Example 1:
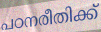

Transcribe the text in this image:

പഠനരീതിക്ക്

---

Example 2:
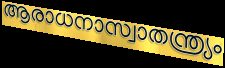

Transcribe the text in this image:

ആരാധനാസ്വാതന്ത്ര്യം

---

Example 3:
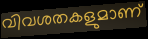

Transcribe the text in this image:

വിവശതകളുമാണ്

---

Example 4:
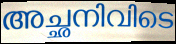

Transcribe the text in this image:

അച്ഛനിവിടെ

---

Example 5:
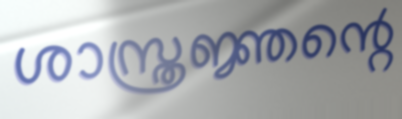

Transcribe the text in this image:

ശാസ്ത്രജ്ഞന്റെ